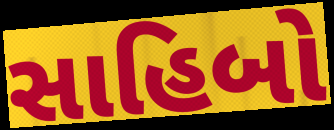
સાહિબો